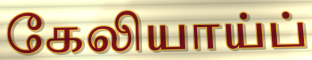
கேலியாய்ப்